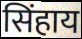
सिंहाय